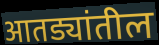
आतड्यांतील